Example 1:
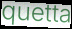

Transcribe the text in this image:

quetta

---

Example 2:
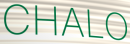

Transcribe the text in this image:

CHALO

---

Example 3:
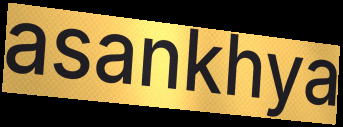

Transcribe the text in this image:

asankhya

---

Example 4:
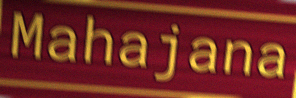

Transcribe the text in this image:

Mahajana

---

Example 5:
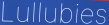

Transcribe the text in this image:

Lullubies